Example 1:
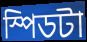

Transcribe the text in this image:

স্পিডটা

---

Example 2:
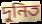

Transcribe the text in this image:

দুনিত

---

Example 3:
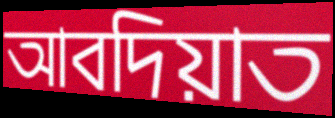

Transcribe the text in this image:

আবদিয়াত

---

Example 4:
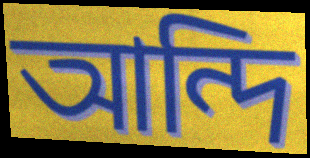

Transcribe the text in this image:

আন্দি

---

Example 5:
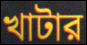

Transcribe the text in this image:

খাটার